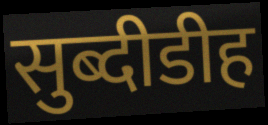
सुब्दीडीह